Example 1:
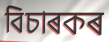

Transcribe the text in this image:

বিচাৰকৰ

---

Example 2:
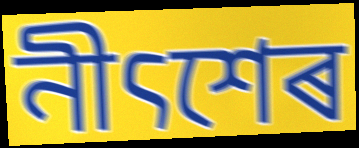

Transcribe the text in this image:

নীৎশেৰ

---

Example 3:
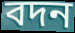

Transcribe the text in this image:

বদন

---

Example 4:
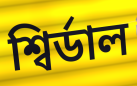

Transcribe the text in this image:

শ্বিৰ্ডাল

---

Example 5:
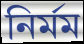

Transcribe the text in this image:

নিৰ্মম